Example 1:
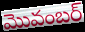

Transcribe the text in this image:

మొవంబర్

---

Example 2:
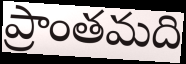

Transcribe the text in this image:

ప్రాంతమది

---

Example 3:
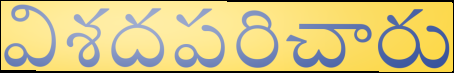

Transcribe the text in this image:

విశదపరిచారు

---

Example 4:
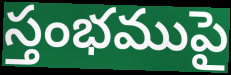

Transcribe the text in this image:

స్తంభముపై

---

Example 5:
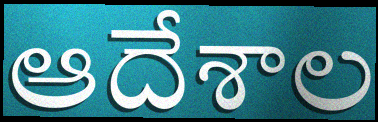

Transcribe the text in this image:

ఆదేశాల